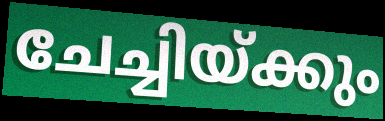
ചേച്ചിയ്ക്കും